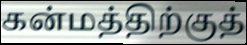
கன்மத்திற்குத்